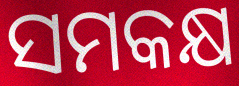
ସମକକ୍ଷ